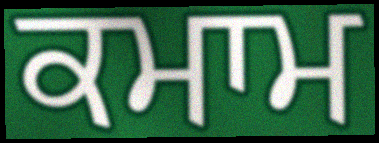
ਕਮਾਮ